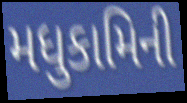
મધુકામિની